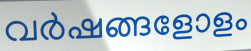
വർഷങ്ങളോളം